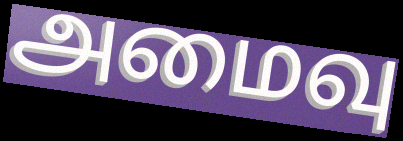
அமைவு